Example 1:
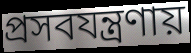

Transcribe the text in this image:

প্রসবযন্ত্রণায়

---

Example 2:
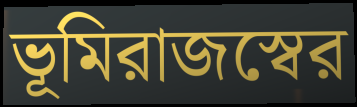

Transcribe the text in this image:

ভূমিরাজস্বের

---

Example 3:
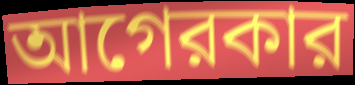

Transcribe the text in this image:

আগেরকার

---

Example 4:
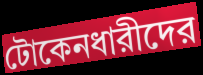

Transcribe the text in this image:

টোকেনধারীদের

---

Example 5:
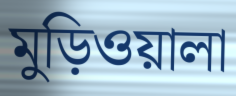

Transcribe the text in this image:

মুড়িওয়ালা